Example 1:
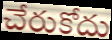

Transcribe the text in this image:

చేరుకోదు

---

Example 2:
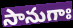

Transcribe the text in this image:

సానుగాః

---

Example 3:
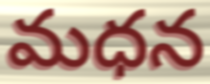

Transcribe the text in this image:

మధన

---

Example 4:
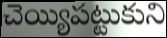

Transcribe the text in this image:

చెయ్యిపట్టుకుని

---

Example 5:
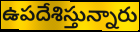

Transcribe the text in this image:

ఉపదేశిస్తున్నారు